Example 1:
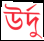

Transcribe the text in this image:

উৰ্দু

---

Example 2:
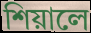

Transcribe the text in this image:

শিয়ালে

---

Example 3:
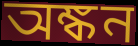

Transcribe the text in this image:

অঙ্কন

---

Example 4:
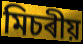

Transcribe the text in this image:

মিচৰীয়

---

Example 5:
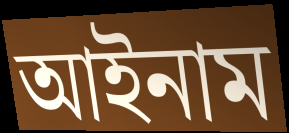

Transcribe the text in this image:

আইনাম